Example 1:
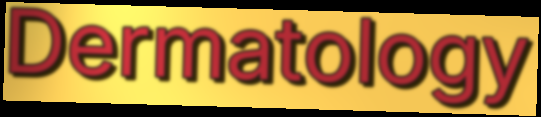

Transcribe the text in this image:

Dermatology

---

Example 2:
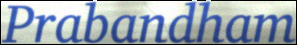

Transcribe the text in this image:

Prabandham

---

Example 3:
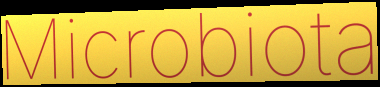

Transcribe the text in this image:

Microbiota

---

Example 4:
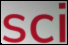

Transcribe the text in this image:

sci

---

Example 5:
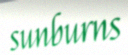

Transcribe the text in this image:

sunburns